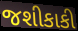
જશીકાકી